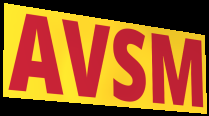
AVSM